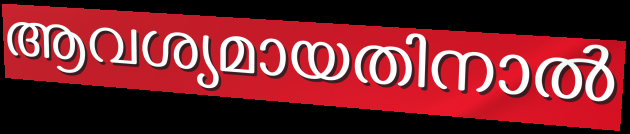
ആവശ്യമായതിനാൽ